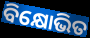
ବିକ୍ଷୋଭିତ